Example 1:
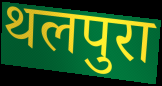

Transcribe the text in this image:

थलपुरा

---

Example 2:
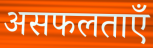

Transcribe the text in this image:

असफलताएँ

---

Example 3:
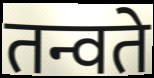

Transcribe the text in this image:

तन्वते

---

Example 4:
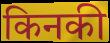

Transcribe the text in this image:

किनकी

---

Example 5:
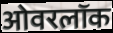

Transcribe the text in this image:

ओवरलॉक